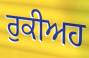
ਰੁਕੀਅਹ